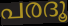
പരദൂ